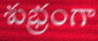
శుభ్రంగా